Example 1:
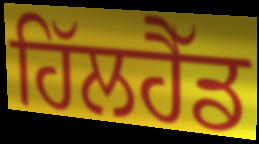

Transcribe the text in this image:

ਹਿੱਲਹੈੱਡ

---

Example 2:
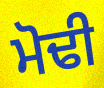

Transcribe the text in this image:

ਮੋਢੀ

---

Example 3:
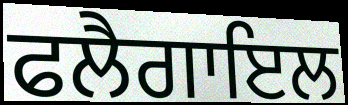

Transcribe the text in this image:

ਫਲੈਗਾਇਲ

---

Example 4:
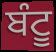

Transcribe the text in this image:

ਬੰਟੂ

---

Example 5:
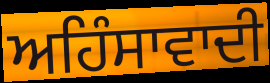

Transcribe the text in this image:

ਅਹਿੰਸਾਵਾਦੀ